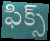
ఫిక్స్